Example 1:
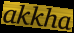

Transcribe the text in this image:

akkha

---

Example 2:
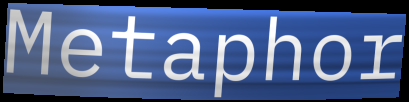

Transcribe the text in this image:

Metaphor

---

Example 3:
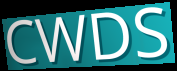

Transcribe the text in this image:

CWDS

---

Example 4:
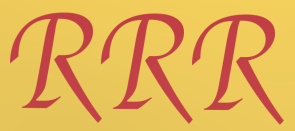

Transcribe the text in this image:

RRR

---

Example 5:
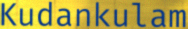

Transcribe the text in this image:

Kudankulam